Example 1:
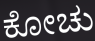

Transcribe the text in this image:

ಕೋಚು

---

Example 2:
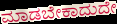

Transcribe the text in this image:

ಮಾಡಬೇಕಾದುದೇ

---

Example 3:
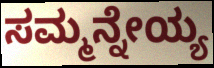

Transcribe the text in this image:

ಸಮ್ಮನ್ನೇಯ್ಯ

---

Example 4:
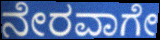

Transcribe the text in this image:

ನೇರವಾಗೇ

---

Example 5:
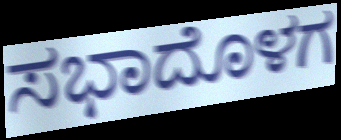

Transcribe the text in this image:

ಸಭಾದೊಳಗ